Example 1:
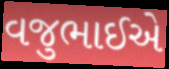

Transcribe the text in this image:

વજુભાઈએ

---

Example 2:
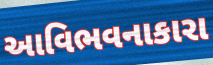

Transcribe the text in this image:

આવિભવનાકારા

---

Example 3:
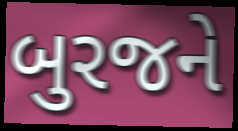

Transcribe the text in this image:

બુરજને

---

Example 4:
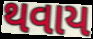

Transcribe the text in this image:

થવાય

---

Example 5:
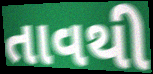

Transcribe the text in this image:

તાવથી